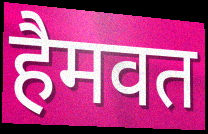
हैमवत